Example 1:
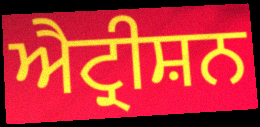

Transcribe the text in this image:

ਐਟ੍ਰੀਸ਼ਨ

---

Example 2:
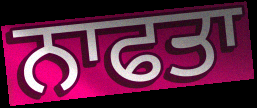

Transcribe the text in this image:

ਨਾਫਤਾ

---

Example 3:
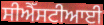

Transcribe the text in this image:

ਸੀਐੱਸਟੀਆਈ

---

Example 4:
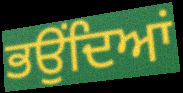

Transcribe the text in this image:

ਭਉਂਦਿਆਂ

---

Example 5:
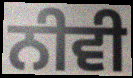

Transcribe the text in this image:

ਨੀਵੀ